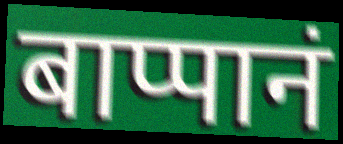
बाप्पानं